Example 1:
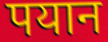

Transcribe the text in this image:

पयान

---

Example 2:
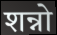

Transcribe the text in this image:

शन्नो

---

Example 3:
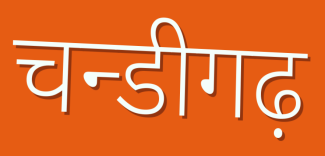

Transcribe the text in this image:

चन्डीगढ़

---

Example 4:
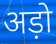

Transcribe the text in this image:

अड़ो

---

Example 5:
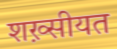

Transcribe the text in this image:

शख़्सीयत